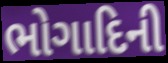
ભોગાદિની